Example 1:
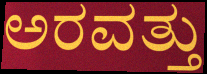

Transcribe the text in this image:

ಅರವತ್ತು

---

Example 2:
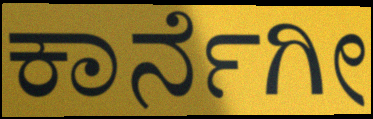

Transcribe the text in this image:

ಕಾರ್ನೆಗೀ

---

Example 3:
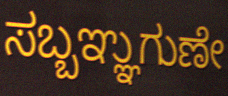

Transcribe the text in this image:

ಸಬ್ಬಞ್ಞುಗುಣೇ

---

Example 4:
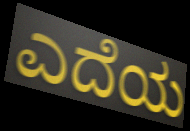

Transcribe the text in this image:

ಎದೆಯ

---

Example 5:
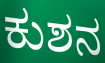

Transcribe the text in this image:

ಕುಶನ